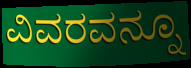
ವಿವರವನ್ನೂ